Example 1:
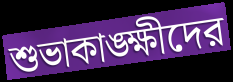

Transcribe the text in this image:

শুভাকাঙ্ক্ষীদের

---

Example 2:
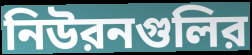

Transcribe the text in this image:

নিউরনগুলির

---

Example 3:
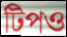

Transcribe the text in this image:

টিপও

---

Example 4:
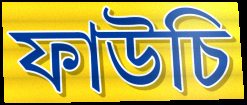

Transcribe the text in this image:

ফাউচি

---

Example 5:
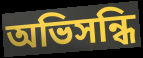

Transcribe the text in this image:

অভিসন্ধি